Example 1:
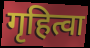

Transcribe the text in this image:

गृहित्वा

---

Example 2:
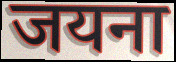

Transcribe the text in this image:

जयना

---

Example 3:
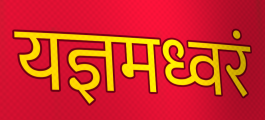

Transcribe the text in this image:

यज्ञमध्वरं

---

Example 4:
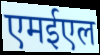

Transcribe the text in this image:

एमईएल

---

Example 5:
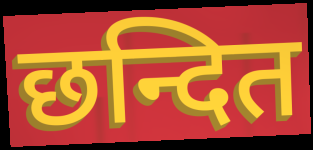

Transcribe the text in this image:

छन्दित